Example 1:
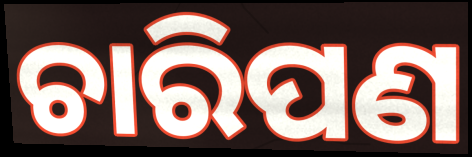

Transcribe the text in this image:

ଚାରିପଣ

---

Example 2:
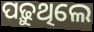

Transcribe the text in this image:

ପଢ଼ୁଥିଲେ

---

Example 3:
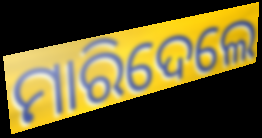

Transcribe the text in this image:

ମାରିଦେଲେ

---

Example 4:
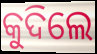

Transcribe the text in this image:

କୁଦିଲେ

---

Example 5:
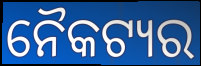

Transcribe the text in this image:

ନୈକଟ୍ୟର